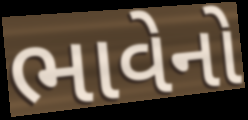
ભાવેનો